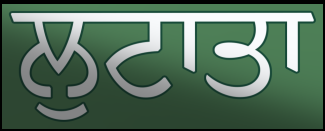
ਲੁਟਾਤਾ